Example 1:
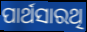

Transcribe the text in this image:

ପାର୍ଥସାରଥି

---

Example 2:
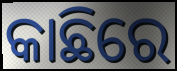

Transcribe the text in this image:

କାଛିରେ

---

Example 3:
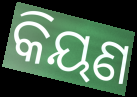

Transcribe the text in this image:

କିୟଣ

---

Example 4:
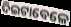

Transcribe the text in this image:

ଦିଇଟାବେଳେ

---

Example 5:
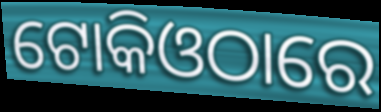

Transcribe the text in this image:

ଟୋକିଓଠାରେ